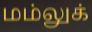
மம்லுக்